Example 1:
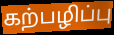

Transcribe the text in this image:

கற்பழிப்பு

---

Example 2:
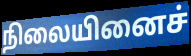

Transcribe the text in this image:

நிலையினைச்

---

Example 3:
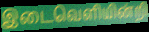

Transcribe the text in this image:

இடைவெளியின்றி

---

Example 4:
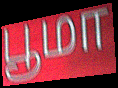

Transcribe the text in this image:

பூமா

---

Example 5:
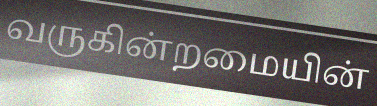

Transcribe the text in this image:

வருகின்றமையின்